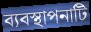
ব্যবস্থাপনাটি